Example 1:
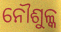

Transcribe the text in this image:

ନୌଶୁଳ୍କ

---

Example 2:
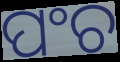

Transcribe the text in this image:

ପଂଚ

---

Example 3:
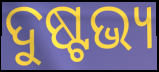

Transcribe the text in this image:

ଦୁଷ୍ଟଭ୍ୟ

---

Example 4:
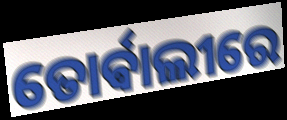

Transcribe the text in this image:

ତୋର୍ଵାଲୀରେ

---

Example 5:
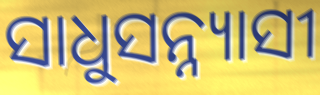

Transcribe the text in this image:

ସାଧୁସନ୍ନ୍ୟାସୀ